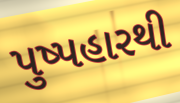
પુષ્પહારથી